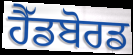
ਹੈੱਡਬੋਰਡ